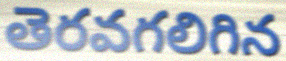
తెరవగలిగిన